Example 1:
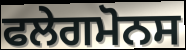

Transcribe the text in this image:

ਫਲੇਗਮੋਨਸ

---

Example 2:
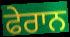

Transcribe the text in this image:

ਫੇਰਾਨ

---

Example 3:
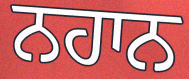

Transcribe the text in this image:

ਨਹਾਨ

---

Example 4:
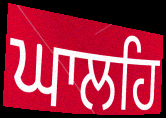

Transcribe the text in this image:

ਘਾਲਹਿ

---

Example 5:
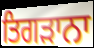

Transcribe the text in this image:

ਤਿਗੜਾਨਾ